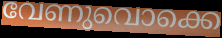
വേണുവൊക്കെ